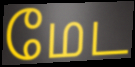
மேட